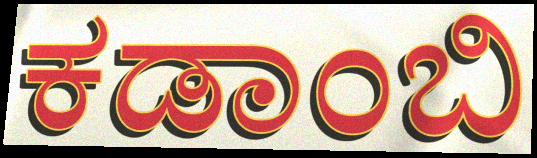
ಕಡಾಂಬಿ